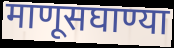
माणूसघाण्या